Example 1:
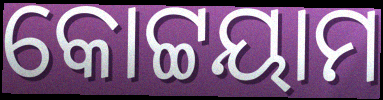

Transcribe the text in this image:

କୋଟ୍ଟୟାମ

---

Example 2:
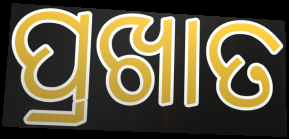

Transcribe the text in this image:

ପ୍ରଖାତ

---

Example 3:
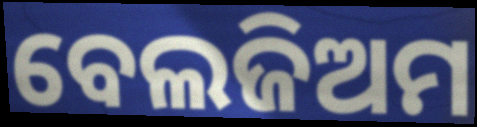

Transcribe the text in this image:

ବେଲଜିଅମ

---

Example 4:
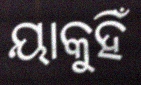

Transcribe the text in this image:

ୟାକୁହିଁ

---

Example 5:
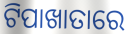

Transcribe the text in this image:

ଟିପାଖାତାରେ